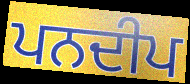
ਪਨਦੀਪ